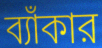
ব্যাঁকার